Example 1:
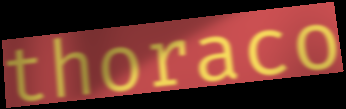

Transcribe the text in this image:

thoraco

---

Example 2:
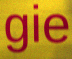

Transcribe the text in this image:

gie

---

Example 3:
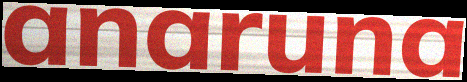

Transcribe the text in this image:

anaruna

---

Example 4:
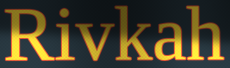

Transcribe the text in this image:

Rivkah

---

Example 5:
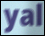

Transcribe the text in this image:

yal